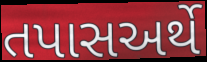
તપાસઅર્થે